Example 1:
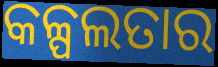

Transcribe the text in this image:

କଳ୍ପଲତାର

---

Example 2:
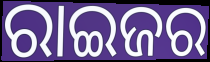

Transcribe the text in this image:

ରାଇଜର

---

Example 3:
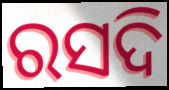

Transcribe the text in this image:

ରସଦି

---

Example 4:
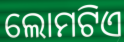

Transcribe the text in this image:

ଲୋମଟିଏ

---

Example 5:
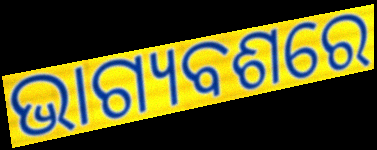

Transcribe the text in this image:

ଭାଗ୍ୟବଶରେ